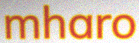
mharo